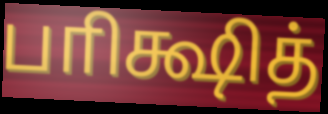
பரிக்ஷித்